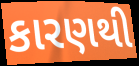
કારણથી